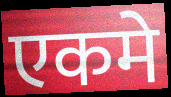
एकमे